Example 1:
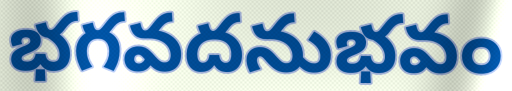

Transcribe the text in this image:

భగవదనుభవం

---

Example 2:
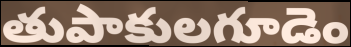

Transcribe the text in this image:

తుపాకులగూడెం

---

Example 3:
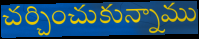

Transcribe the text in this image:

చర్చించుకున్నాము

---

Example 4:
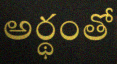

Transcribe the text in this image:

అర్థంతో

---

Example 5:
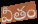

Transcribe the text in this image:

వీతం